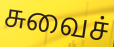
சுவைச்